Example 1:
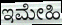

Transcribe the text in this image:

ಇಮೇಹಿ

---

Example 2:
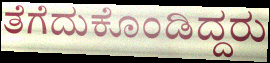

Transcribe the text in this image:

ತೆಗೆದುಕೊಂಡಿದ್ದರು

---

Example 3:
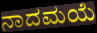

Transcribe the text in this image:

ನಾದಮಯೆ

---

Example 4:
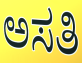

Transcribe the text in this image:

ಅಸತಿ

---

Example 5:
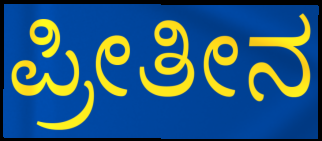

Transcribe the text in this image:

ಪ್ರೀತೀನ